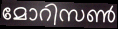
മോറിസൺ